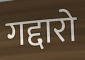
गद्दारो